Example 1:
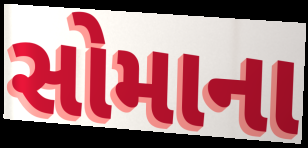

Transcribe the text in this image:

સોમાના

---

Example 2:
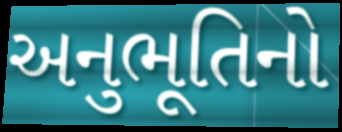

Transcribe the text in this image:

અનુભૂતિનો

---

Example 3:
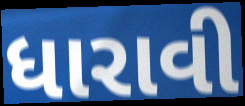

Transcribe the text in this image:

ધારાવી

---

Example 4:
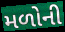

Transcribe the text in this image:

મળોની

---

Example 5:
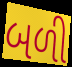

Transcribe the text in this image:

બળી